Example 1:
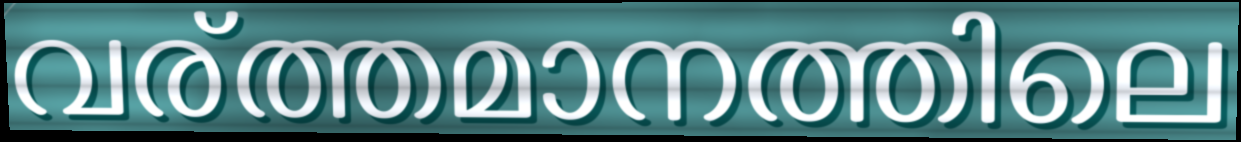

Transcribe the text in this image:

വര്ത്തമാനത്തിലെ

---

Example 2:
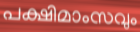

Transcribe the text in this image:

പക്ഷിമാംസവും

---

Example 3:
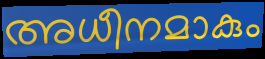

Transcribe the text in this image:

അധീനമാകും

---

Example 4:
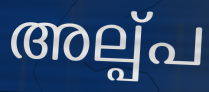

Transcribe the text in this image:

അല്പ്പ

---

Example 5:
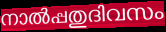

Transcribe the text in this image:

നാൽപ്പതുദിവസം